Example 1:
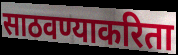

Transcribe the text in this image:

साठवण्याकरिता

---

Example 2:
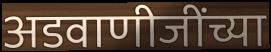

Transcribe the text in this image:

अडवाणीजींच्या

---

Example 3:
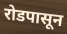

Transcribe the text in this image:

रोडपासून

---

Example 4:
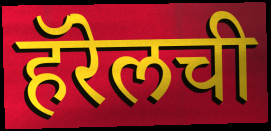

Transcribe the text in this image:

हॅरेलची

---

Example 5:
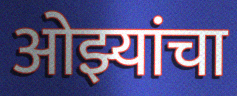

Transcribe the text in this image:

ओझ्यांचा